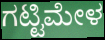
ಗಟ್ಟಿಮೇಳ